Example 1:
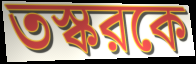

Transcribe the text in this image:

তস্করকে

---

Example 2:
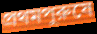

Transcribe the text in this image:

প্রথমপুরুষে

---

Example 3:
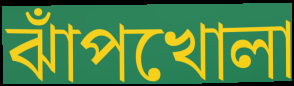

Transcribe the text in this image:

ঝাঁপখোলা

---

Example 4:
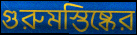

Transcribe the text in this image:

গুরুমস্তিষ্কের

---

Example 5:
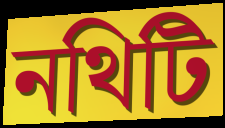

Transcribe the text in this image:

নথিটি